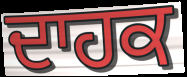
ਦਾਹਕ